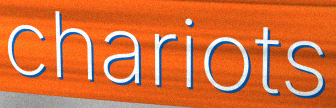
chariots